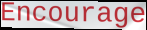
Encourage